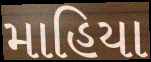
માહિયા